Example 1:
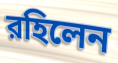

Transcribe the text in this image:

রহিলেন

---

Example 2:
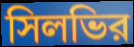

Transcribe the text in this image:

সিলভির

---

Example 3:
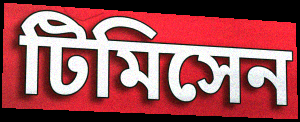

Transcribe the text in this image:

টিমিসেন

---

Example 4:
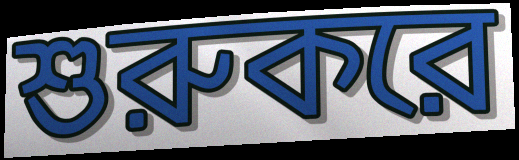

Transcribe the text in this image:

শুরুকরে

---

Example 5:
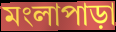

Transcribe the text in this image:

মংলাপাড়া